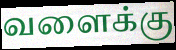
வளைக்கு